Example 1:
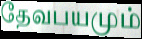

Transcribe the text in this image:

தேவபயமும்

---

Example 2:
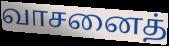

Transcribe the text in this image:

வாசனைத்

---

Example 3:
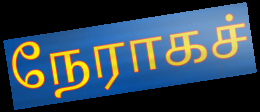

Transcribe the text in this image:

நேராகச்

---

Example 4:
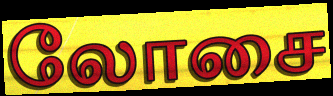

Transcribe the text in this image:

லோசை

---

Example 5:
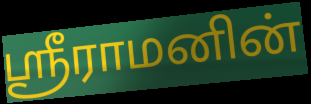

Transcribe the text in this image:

ஸ்ரீராமனின்